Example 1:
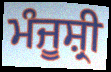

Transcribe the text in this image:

ਮੰਜੂਸ਼੍ਰੀ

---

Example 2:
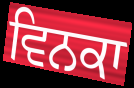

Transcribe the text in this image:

ਵਿਨਕਾ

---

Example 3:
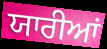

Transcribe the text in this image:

ਯਾਰੀਆਂ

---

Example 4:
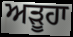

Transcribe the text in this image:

ਅੜੂਹਾ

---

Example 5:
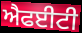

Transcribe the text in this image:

ਐਫਈਟੀ